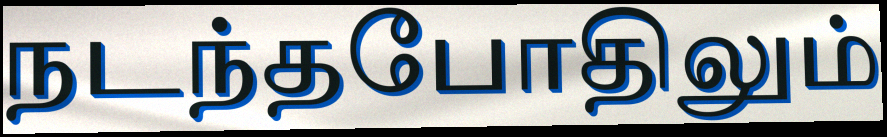
நடந்தபோதிலும்